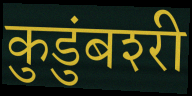
कुडुंबश्री